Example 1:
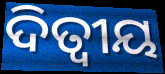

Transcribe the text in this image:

ଦିତ୍ୱୀୟ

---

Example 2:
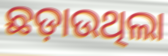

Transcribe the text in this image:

ଛଡ଼ାଉଥିଲା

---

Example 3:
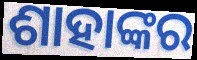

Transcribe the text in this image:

ଶାହାଙ୍କର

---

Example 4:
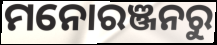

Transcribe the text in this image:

ମନୋରଞ୍ଜନରୁ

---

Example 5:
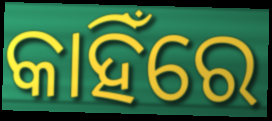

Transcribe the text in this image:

କାହିଁରେ